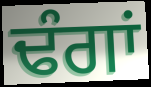
ਢੰਗਾਂ